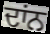
ਦਾਂਨ